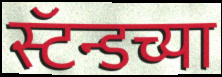
स्टॅन्डच्या